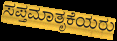
ಸಪ್ತಮಾತೃಕೆಯರು